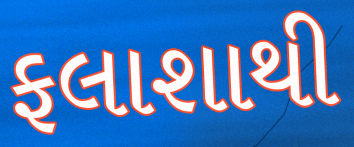
ફલાશાથી